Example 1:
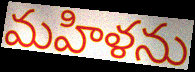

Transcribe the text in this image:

మహిళను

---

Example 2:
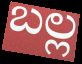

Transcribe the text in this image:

బల్ల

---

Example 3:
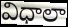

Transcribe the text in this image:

విధాలా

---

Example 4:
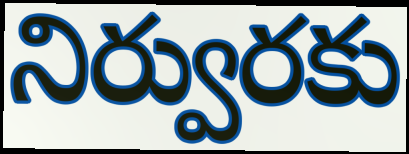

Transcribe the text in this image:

నిర్వురకు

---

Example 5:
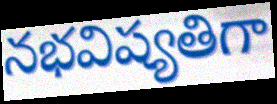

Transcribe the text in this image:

నభవిష్యతిగా